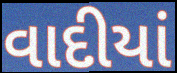
વાદીયાં